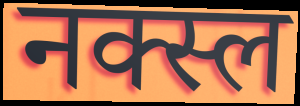
नक्स्ल